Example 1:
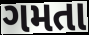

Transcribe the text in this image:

ગમતા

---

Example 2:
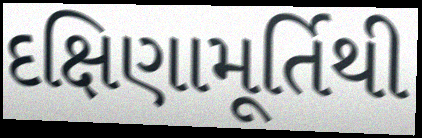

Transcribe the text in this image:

દક્ષિણામૂર્તિથી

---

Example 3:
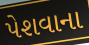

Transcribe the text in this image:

પેશવાના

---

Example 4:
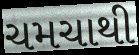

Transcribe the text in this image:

ચમચાથી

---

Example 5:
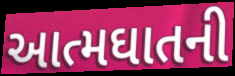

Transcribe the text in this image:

આત્મઘાતની